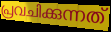
പ്രവചിക്കുന്നത്